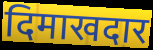
दिमाखदार